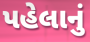
પહેલાનું